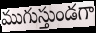
ముగుస్తుండగా